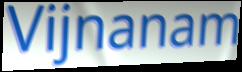
Vijnanam